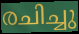
രചിച്ചു